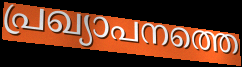
പ്രഖ്യാപനത്തെ